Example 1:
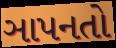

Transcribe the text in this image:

ઞાપનતો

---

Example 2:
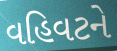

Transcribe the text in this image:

વહિવટને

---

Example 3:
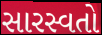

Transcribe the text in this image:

સારસ્વતો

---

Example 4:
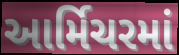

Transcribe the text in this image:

આર્મિચરમાં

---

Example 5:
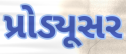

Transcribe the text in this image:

પ્રોડ્યૂસર